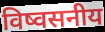
विष्वसनीय